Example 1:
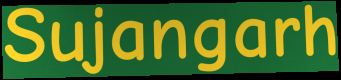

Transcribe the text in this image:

Sujangarh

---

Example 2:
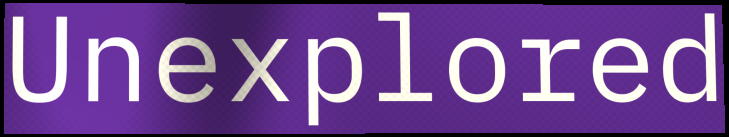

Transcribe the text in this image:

Unexplored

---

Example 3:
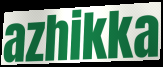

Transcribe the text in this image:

azhikka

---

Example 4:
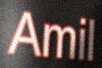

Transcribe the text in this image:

Amil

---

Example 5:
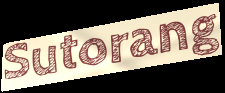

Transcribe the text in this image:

Sutorang